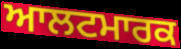
ਆਲਟਮਾਰਕ